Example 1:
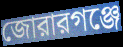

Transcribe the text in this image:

জোরারগঞ্জে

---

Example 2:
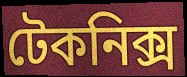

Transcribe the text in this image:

টেকনিক্স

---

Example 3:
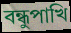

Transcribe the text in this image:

বন্ধুপাখি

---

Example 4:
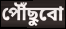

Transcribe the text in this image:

পৌঁছুবো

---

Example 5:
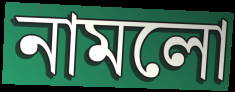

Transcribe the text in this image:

নামলো